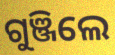
ଗୁଞ୍ଜିଲେ